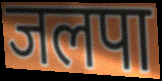
जलपा